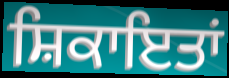
ਸ਼ਿਕਾਇਤਾਂ